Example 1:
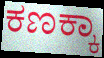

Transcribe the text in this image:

ಕಣಕ್ಕಾ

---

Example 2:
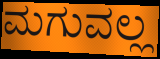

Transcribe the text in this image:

ಮಗುವಲ್ಲ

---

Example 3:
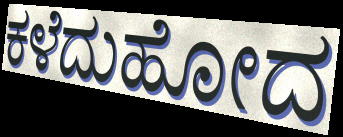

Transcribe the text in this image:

ಕಳೆದುಹೋದ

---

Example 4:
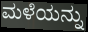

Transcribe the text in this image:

ಮಳೆಯನ್ನು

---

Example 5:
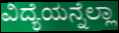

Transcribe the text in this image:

ವಿದ್ಯೆಯನ್ನೆಲ್ಲಾ